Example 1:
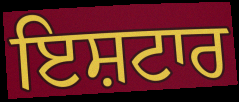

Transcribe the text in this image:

ਇਸ਼ਟਾਰ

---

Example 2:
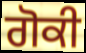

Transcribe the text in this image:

ਗੋਕੀ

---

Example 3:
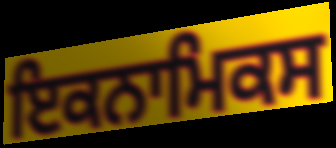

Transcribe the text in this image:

ਇਕਨਾਮਿਕਸ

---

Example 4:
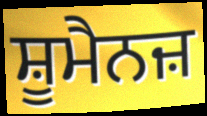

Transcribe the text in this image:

ਸ਼ੂਮੈਨਜ਼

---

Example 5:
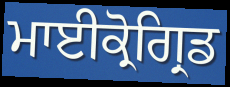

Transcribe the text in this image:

ਮਾਈਕ੍ਰੋਗ੍ਰਿਡ